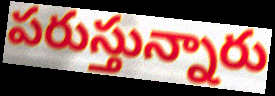
పరుస్తున్నారు